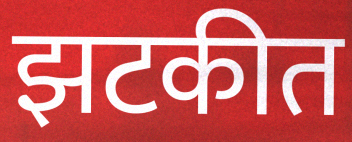
झटकीत